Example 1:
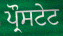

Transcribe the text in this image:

ਪ੍ਰੌਸਟੇਟ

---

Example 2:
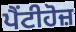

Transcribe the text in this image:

ਪੈਂਟੀਹੋਜ਼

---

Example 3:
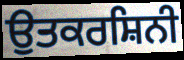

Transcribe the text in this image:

ਉਤਕਰਸ਼ਿਨੀ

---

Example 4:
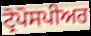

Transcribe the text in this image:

ਟ੍ਰੋਪੋਸਪੀਅਰ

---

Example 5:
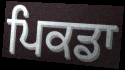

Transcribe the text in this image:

ਪਿਕਡਾ